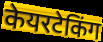
केयरटेकिंग